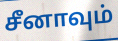
சீனாவும்